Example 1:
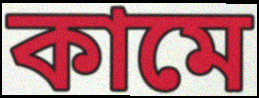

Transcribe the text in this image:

কামে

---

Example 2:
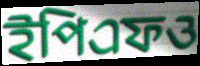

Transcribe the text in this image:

ইপিএফও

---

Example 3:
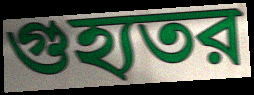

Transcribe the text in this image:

গুহ্যতর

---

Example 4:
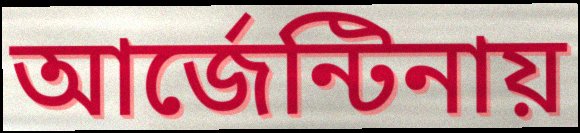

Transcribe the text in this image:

আর্জেন্টিনায়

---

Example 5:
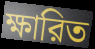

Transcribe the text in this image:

ক্ষারিত